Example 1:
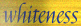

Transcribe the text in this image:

whiteness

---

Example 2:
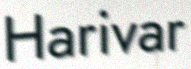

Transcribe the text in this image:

Harivar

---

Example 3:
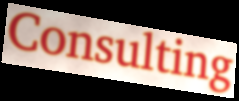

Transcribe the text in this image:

Consulting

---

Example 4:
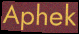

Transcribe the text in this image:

Aphek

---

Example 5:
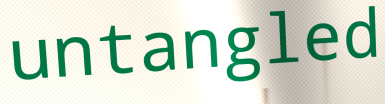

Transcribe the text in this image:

untangled